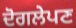
ਦੋਗਲੇਪਣ